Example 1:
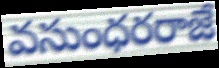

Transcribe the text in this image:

వసుంధరరాజే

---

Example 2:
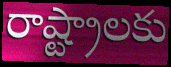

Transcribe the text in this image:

రాష్ట్రాలకు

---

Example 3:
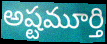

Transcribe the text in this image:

అష్టమూర్తి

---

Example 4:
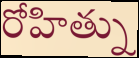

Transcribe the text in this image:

రోహిత్ను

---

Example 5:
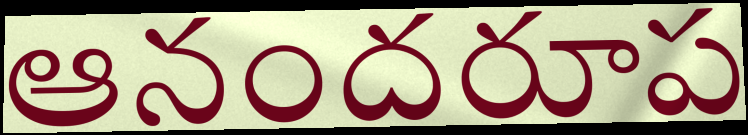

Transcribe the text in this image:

ఆనందరూప